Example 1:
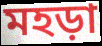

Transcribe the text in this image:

মহড়া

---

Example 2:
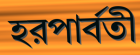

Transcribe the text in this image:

হরপার্বতী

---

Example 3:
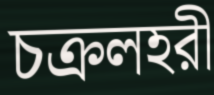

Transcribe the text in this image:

চক্রলহরী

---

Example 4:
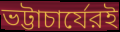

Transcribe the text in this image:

ভট্টাচার্যেরই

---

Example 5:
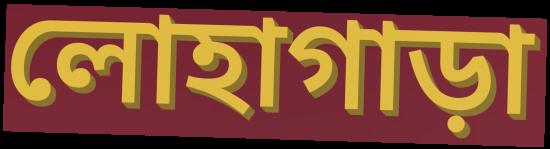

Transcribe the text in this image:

লোহাগাড়া